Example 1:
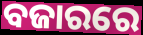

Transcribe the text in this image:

ବଜାରରେ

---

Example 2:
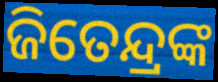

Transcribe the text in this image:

ଜିତେନ୍ଦ୍ରଙ୍କ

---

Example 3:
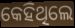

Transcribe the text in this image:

କେହିଥିଲେ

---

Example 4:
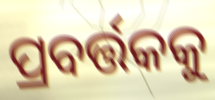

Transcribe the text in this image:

ପ୍ରବର୍ତ୍ତକକୁ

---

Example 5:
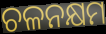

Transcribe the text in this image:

ଚଳନକ୍ଷମ